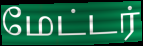
மேட்டர்